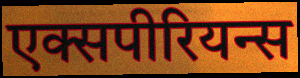
एक्सपीरियन्स